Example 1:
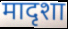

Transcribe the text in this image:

मादृशा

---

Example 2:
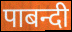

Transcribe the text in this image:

पाबन्दी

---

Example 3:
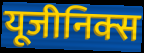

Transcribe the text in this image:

यूजीनिक्स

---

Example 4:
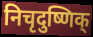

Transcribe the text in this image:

निचृदुष्णिक्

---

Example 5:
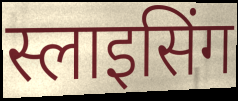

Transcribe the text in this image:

स्लाइसिंग